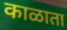
काळाता